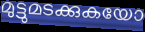
മുട്ടുമടക്കുകയോ